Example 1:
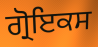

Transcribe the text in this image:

ਗ੍ਰੋਇਕਸ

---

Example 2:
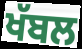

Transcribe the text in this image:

ਖੱਬਲ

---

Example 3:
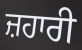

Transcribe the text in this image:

ਜ਼ਹਾਰੀ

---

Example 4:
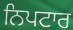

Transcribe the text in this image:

ਨਿਪਟਾਰ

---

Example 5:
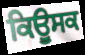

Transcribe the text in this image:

ਕਿਊਸਕ